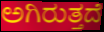
ಅಗಿರುತ್ತದೆ